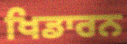
ਖਿਡਾਰਨ